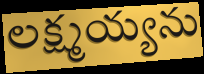
లక్ష్మయ్యను